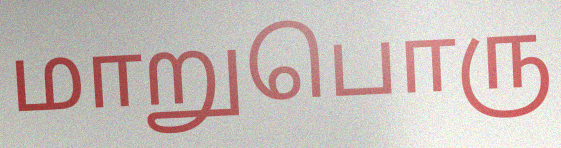
மாறுபொரு